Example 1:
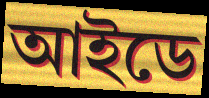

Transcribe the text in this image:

আইডে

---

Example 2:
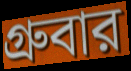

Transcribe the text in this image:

গ্রুবার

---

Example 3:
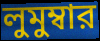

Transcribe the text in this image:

লুমুম্বার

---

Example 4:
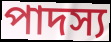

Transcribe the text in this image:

পাদস্য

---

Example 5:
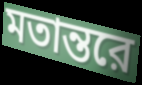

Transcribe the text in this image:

মতান্তরে